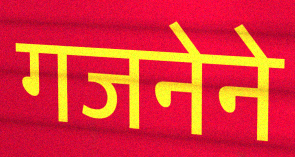
गजनेने